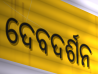
ଦେବଦର୍ଶନ